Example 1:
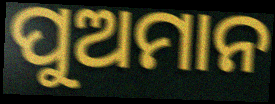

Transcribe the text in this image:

ପୁଅମାନ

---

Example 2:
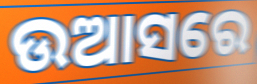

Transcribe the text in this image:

ଉଆସରେ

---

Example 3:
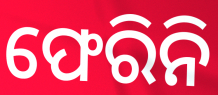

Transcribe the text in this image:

ଫେରିନି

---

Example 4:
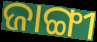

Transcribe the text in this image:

ଜାଙ୍ଗୀ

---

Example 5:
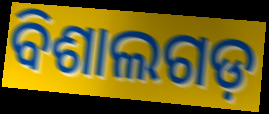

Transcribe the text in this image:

ବିଶାଲଗଡ଼